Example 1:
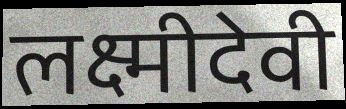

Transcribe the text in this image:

लक्ष्मीदेवी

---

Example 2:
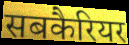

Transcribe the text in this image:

सबकैरियर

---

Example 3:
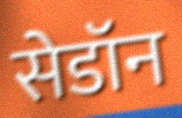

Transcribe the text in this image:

सेडॉन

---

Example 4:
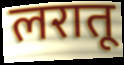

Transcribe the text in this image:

लरातू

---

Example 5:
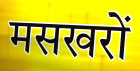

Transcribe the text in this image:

मसखरों